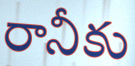
రానీకు